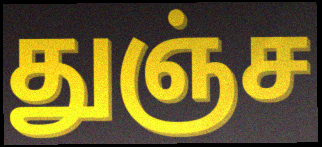
துஞ்ச